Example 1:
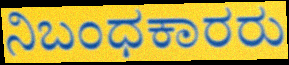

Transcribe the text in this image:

ನಿಬಂಧಕಾರರು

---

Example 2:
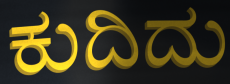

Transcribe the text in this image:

ಕುದಿದು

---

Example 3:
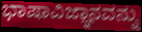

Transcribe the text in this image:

ಭಾಷಾವಿಜ್ಞಾನವನ್ನು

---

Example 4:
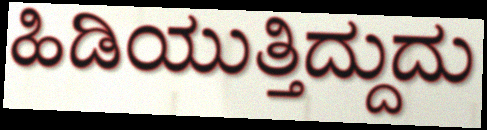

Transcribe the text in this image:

ಹಿಡಿಯುತ್ತಿದ್ದುದು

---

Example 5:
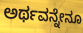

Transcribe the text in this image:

ಅರ್ಥವನ್ನೇನೂ